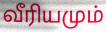
வீரியமும்